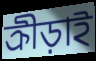
ক্রীড়াই